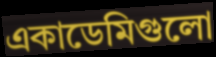
একাডেমিগুলো